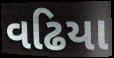
વઢિયા